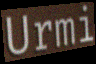
Urmi